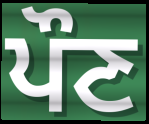
ਪੌਣ